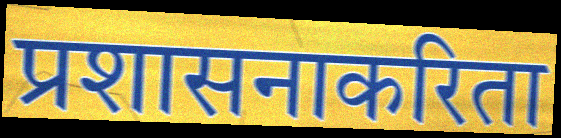
प्रशासनाकरिता